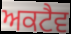
ਅਕਟੈਵ